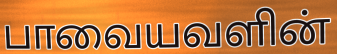
பாவையவளின்